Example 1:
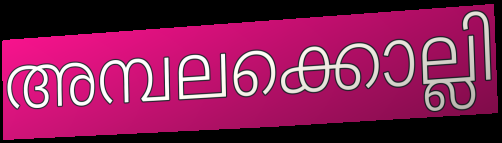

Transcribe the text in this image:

അമ്പലക്കൊല്ലി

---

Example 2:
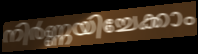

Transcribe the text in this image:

നിർണ്ണയിച്ചേക്കാം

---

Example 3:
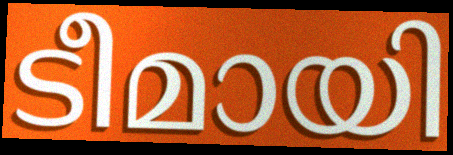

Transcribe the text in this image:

ടീമായി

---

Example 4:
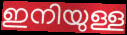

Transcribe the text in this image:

ഇനിയുള്ള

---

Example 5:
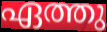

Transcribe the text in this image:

ഏത്തു